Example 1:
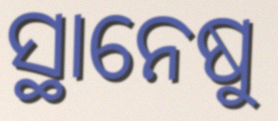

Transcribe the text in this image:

ସ୍ଥାନେଷୁ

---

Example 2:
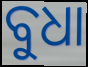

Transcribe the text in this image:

ବୁଧା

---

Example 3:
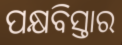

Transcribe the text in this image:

ପକ୍ଷବିସ୍ତାର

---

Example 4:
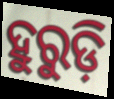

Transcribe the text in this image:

ହୁରୁଡ଼ି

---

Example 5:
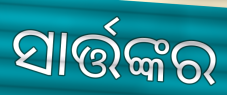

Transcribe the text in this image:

ସାର୍ତ୍ତଙ୍କର